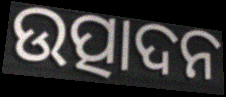
ଉତ୍ପାଦନ